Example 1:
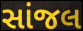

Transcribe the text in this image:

સાંજલ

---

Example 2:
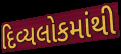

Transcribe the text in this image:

દિવ્યલોકમાંથી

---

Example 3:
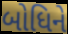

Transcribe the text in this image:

બોધિને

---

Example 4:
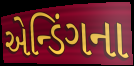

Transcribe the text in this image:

એન્ડિંગના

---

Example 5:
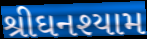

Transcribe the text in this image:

શ્રીઘનશ્યામ